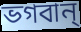
ভগবান্